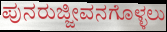
ಪುನರುಜ್ಜೀವನಗೊಳ್ಳಲು